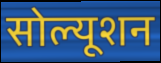
सोल्यूशन